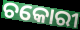
ଚକୋରୀ